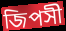
জিপসী